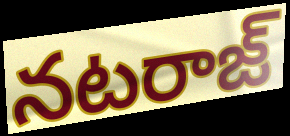
నటరాజ్